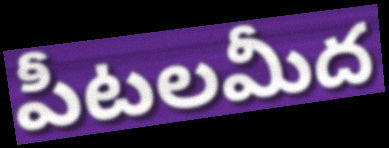
పీటలమీద